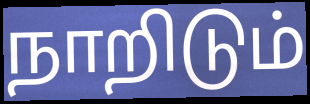
நாறிடும்